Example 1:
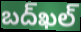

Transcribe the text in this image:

బద్‌ఖల్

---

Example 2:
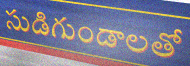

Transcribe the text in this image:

సుడిగుండాలతో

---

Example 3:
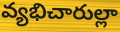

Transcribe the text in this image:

వ్యభిచారుల్లా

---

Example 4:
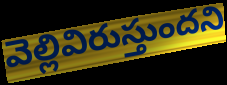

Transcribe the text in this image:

వెల్లివిరుస్తుందని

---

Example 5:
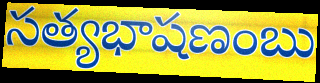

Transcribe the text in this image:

సత్యభాషణంబు